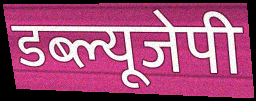
डब्ल्यूजेपी